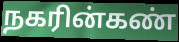
நகரின்கண்